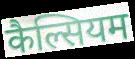
कैल्सियम